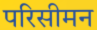
परिसीमन